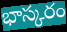
భాస్కరం